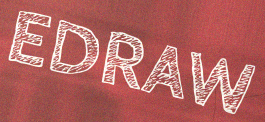
EDRAW